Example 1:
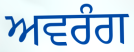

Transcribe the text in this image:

ਅਵਰੰਗ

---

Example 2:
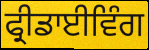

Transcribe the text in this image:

ਫ੍ਰੀਡਾਈਵਿੰਗ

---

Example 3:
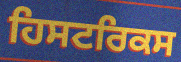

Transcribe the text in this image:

ਹਿਸਟਰਿਕਸ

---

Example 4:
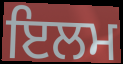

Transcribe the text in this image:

ਇਲਮ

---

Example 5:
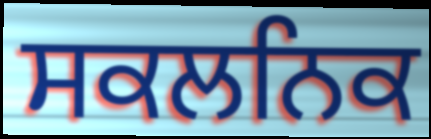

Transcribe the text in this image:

ਸਕਲਨਿਕ